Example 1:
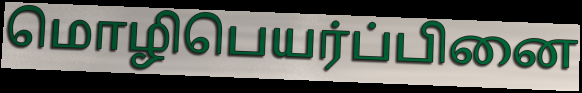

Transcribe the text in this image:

மொழிபெயர்ப்பினை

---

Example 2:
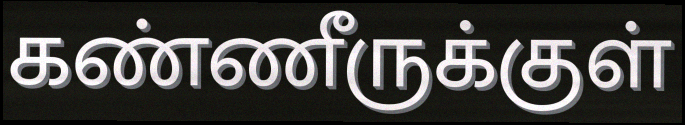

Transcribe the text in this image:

கண்ணீருக்குள்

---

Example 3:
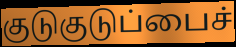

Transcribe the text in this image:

குடுகுடுப்பைச்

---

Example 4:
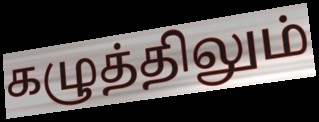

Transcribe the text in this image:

கழுத்திலும்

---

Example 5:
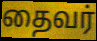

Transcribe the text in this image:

தைவர்